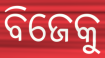
ବିଜେକୁ